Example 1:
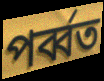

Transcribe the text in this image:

পৰ্ব্বত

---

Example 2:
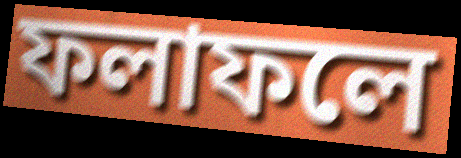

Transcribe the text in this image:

ফলাফলে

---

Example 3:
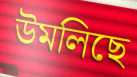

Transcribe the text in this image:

উমলিছে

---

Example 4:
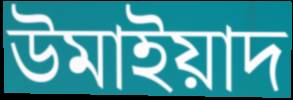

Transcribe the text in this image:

উমাইয়াদ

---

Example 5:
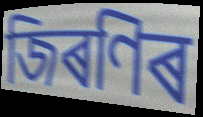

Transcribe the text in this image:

জিৰণিৰ